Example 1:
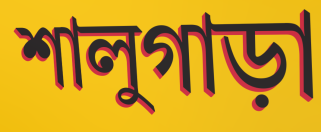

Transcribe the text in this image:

শালুগাড়া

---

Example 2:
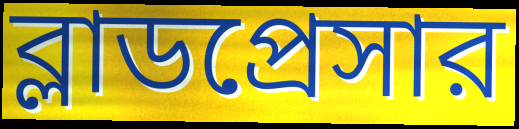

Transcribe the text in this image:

ব্লাডপ্রেসার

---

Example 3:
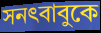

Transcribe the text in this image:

সনৎবাবুকে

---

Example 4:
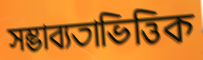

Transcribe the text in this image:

সম্ভাব্যতাভিত্তিক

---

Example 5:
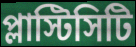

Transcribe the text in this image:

প্লাস্টিসিটি